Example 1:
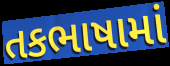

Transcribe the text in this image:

તકભાષામાં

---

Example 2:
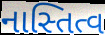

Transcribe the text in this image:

નાસ્તિત્વ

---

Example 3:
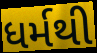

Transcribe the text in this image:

ધર્મથી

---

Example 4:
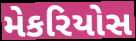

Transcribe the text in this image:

મેકરિયોસ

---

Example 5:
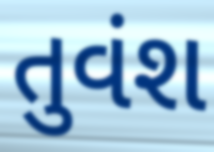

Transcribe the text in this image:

તુવંશ